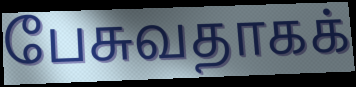
பேசுவதாகக்